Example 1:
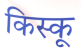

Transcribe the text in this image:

किस्कू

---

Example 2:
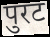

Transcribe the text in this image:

पुरट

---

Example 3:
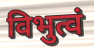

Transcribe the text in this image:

विभुत्वं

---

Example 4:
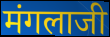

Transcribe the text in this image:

मंगलाजी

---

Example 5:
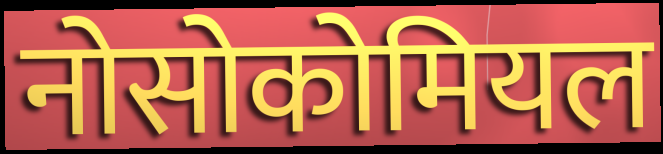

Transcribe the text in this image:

नोसोकोमियल